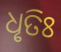
ଧୃତିଃ